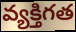
వ్యక్తిగత